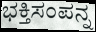
ಭಕ್ತಿಸಂಪನ್ನ